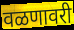
वळणावरी